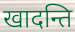
खादन्ति